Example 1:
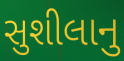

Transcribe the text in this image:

સુશીલાનુ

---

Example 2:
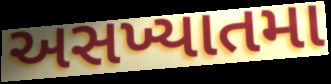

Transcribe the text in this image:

અસખ્યાતમા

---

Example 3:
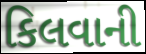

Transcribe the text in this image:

કિલવાની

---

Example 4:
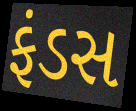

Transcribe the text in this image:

ફંડસ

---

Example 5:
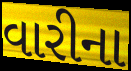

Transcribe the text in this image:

વારીના